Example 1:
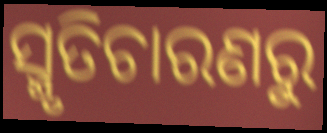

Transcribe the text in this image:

ସ୍ମୃତିଚାରଣରୁ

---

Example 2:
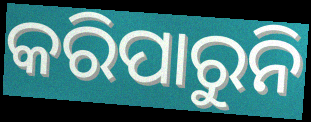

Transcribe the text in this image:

କରିପାରୁନି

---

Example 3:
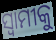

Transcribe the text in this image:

ସ୍ବାମୀକୁ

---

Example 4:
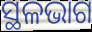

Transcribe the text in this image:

ସ୍ଥଳଭାଗ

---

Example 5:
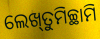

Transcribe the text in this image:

ଲେଖ୍‌ତୁମିଚ୍ଛାମି